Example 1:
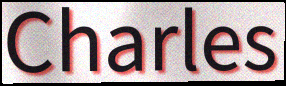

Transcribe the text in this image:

Charles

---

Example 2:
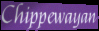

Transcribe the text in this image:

Chippewayan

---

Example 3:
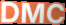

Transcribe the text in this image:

DMC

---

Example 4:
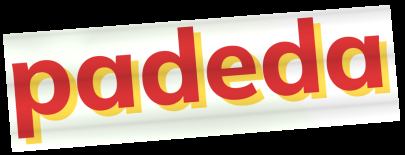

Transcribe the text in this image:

padeda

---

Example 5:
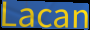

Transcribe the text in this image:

Lacan